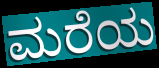
ಮರೆಯ